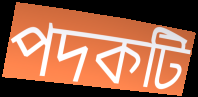
পদকটি